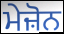
ਮੇਜ਼ੋਨ